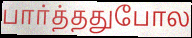
பார்த்ததுபோல